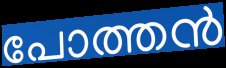
പോത്തൻ